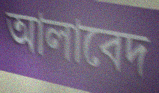
আলাবেদ